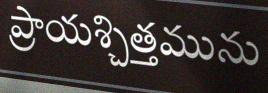
ప్రాయశ్చిత్తమును